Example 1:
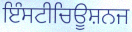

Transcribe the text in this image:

ਇੰਸਟੀਚਿਊਸ਼ਨਜ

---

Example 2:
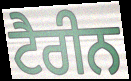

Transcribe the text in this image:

ਟੈਰੀਨ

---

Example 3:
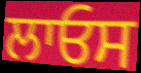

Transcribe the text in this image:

ਲਾਓਸ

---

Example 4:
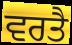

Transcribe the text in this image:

ਵਰਤੈ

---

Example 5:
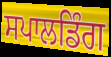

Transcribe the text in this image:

ਸਪਾਲਡਿੰਗ